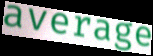
average